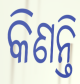
କିଣନ୍ତି